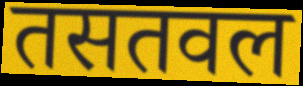
तसतवल